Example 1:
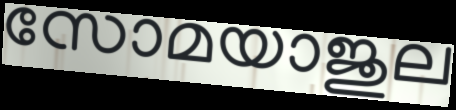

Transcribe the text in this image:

സോമയാജുല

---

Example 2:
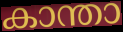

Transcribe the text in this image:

കാന്താ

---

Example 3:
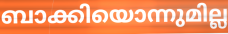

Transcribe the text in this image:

ബാക്കിയൊന്നുമില്ല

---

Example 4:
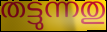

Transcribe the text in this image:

തട്ടുന്നതു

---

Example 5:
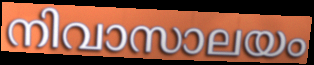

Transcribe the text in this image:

നിവാസാലയം